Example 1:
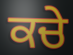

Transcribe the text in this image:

ਕਚੇ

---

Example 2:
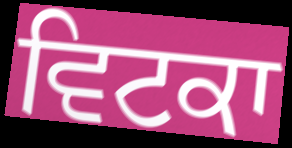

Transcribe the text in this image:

ਵਿਟਕਾ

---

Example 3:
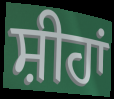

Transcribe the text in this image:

ਸ਼ੀਹਾਂ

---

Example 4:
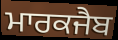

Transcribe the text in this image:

ਮਾਰਕਜੈਬ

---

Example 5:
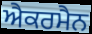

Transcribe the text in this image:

ਐਕਰਮੈਨ